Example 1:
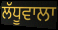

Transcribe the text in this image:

ਲੱਧੂਵਾਲਾ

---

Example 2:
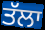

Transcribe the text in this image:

ਤੱਲਾ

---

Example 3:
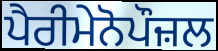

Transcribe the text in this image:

ਪੈਰੀਮੇਨੋਪੌਜ਼ਲ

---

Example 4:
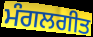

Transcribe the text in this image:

ਮੰਗਲਗੀਤ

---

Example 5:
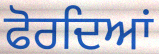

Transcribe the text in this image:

ਫੋਰਦਿਆਂ